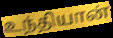
உந்தியான்